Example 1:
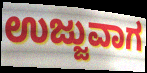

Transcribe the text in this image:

ಉಜ್ಜುವಾಗ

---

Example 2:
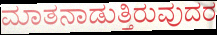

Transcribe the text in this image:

ಮಾತನಾಡುತ್ತಿರುವುದರ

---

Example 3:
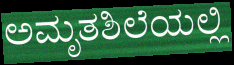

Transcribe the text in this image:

ಅಮೃತಶಿಲೆಯಲ್ಲಿ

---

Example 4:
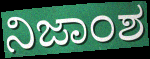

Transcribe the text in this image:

ನಿಜಾಂಶ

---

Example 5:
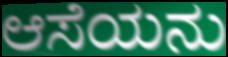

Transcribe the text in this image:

ಆಸೆಯನು